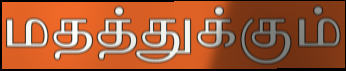
மதத்துக்கும்